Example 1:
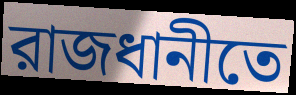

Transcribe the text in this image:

রাজধানীতে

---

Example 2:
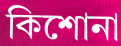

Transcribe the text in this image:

কিশোনা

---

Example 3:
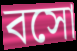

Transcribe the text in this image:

বসো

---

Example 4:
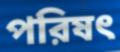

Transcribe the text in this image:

পরিষৎ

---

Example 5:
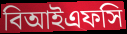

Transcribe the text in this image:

বিআইএফসি